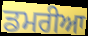
ਡਮਰੀਆ